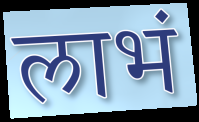
लाभं